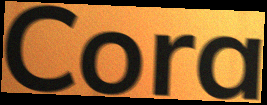
Cora